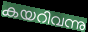
കയറിവന്നു